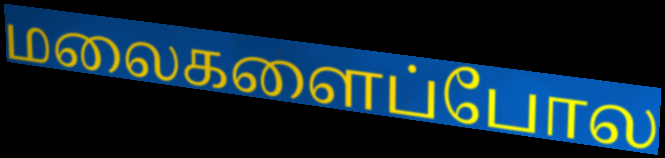
மலைகளைப்போல